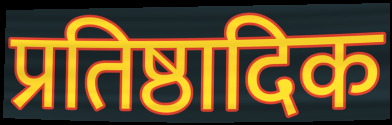
प्रतिष्ठादिक